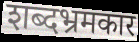
शब्दभ्रमकार